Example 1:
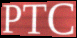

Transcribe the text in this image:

PTC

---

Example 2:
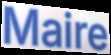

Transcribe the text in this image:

Maire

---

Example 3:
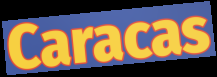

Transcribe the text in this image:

Caracas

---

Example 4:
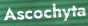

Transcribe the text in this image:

Ascochyta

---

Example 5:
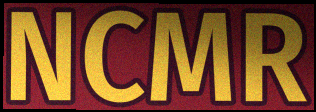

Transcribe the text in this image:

NCMR